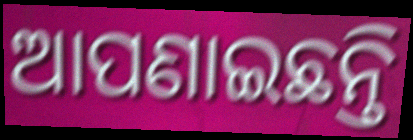
ଆପଣାଇଛନ୍ତି